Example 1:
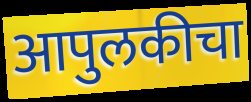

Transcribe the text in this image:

आपुलकीचा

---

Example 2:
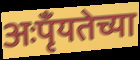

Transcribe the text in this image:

अःपृँयतेच्या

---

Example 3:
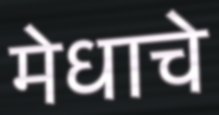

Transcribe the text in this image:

मेधाचे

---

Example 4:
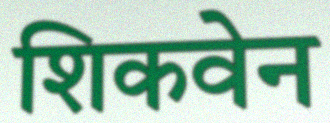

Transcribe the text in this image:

शिकवेन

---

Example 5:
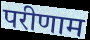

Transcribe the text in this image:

परीणाम